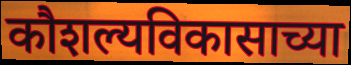
कौशल्यविकासाच्या